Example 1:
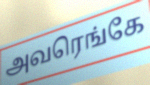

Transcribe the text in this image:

அவரெங்கே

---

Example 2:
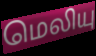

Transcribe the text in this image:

மெலியு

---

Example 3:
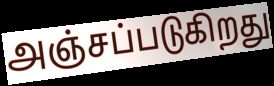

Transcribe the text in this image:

அஞ்சப்படுகிறது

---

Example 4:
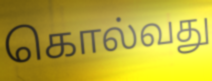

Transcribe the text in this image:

கொல்வது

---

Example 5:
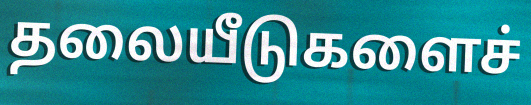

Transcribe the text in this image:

தலையீடுகளைச்